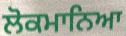
ਲੋਕਮਾਨਿਆ